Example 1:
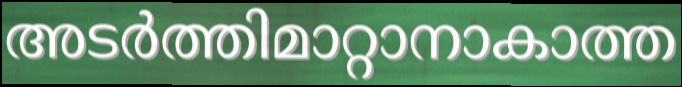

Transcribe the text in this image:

അടർത്തിമാറ്റാനാകാത്ത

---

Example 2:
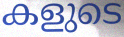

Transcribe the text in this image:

കളുടെ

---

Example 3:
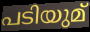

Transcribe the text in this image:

പടിയുമ്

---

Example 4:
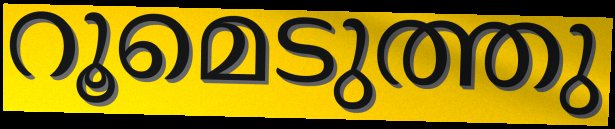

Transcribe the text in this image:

റൂമെടുത്തു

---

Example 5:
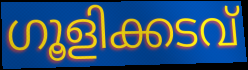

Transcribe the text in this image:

ഗൂളിക്കടവ്